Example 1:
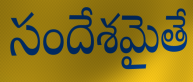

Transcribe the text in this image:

సందేశమైతే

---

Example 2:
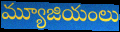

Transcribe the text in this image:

మ్యూజియంలు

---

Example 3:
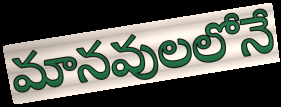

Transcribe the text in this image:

మానవులలోనే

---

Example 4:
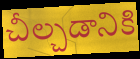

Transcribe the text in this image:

చీల్చడానికి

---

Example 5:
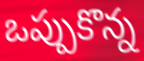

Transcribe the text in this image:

ఒప్పుకొన్న